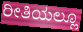
ರೀತಿಯಲ್ಲೂ